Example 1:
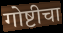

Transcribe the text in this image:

गोष्टीचा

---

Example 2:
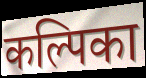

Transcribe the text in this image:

कल्पिका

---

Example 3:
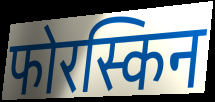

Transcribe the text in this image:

फोरस्किन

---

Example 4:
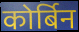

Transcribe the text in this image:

कोर्बिन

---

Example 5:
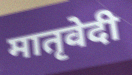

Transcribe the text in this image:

मातृवेदी